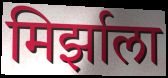
मिर्झाला